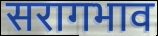
सरागभाव